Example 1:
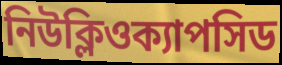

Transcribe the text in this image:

নিউক্লিওক্যাপসিড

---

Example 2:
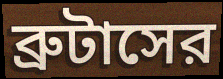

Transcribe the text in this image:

ব্রুটাসের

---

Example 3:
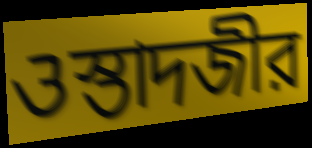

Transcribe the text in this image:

ওস্তাদজীর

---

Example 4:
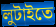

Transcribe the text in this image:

লুটাইতে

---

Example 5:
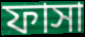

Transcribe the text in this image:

ফাসা